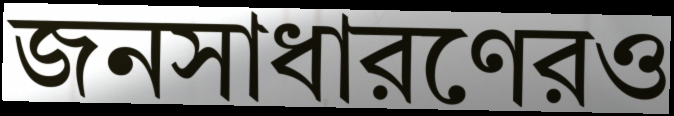
জনসাধারণেরও